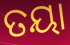
ତୟା